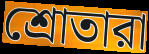
শ্রোতারা